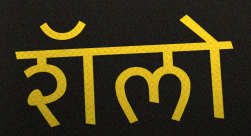
शॅलो